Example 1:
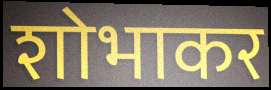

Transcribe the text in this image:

शोभाकर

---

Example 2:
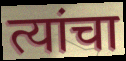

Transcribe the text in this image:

त्यांचा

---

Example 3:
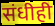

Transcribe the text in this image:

संधीही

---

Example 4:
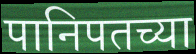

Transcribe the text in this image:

पानिपतच्या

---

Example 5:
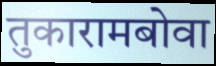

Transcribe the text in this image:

तुकारामबोवा